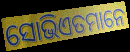
ସୋଭିଏତମାନେ